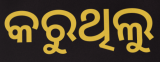
କରୁଥିଲୁ